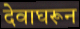
देवाघरून